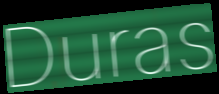
Duras